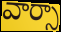
వార్సా